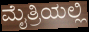
ಮೈತ್ರಿಯಲ್ಲಿ